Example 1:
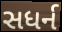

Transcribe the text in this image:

સધર્ન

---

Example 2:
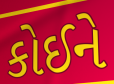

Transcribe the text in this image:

કોઈને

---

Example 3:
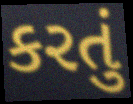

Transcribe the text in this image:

કરતું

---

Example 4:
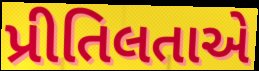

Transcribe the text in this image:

પ્રીતિલતાએ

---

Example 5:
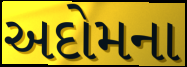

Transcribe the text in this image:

અદોમના